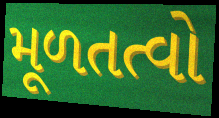
મૂળતત્વો